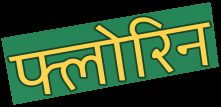
फ्लोरिन